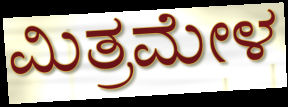
ಮಿತ್ರಮೇಳ